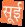
सूई